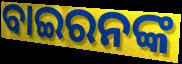
ବାଇରନଙ୍କ